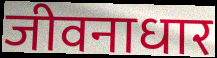
जीवनाधार